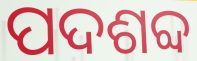
ପଦଶବ୍ଦ